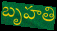
బృహతి